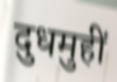
दुधमुहीं